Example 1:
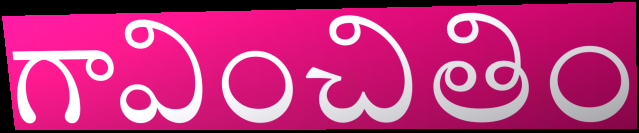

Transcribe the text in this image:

గావించితిం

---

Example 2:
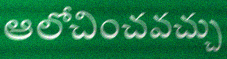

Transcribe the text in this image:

ఆలోచించవచ్చు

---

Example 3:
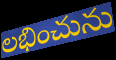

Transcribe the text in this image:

లభించును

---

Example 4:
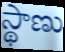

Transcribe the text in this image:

స్థాణు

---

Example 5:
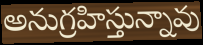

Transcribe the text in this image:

అనుగ్రహిస్తున్నావు